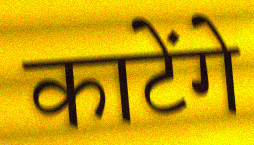
काटेंगे